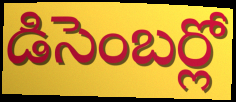
డిసెంబర్లో